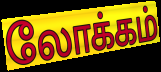
லோக்கம்